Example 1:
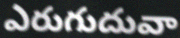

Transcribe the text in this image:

ఎరుగుదువా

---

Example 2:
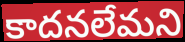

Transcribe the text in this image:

కాదనలేమని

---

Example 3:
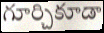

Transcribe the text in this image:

గూర్చికూడా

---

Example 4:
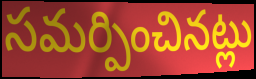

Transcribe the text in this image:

సమర్పించినట్లు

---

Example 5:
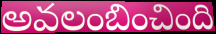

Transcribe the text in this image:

అవలంబించింది